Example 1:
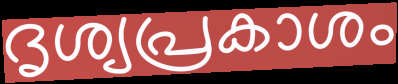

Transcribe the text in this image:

ദൃശ്യപ്രകാശം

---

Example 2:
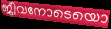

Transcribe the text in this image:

ജീവനോടെയൊ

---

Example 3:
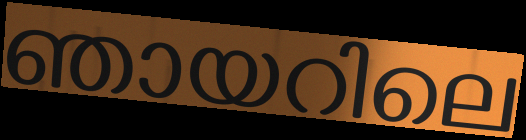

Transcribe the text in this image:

ഞായറിലെ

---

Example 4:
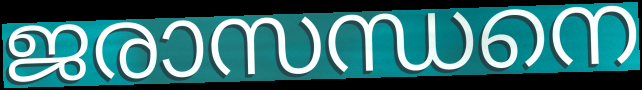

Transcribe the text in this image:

ജരാസന്ധനെ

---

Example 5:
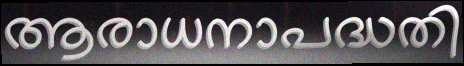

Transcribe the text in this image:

ആരാധനാപദ്ധതി